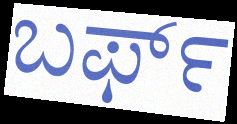
ಬರ್ಫ್